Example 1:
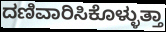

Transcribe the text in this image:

ದಣಿವಾರಿಸಿಕೊಳ್ಳುತ್ತಾ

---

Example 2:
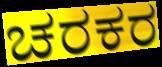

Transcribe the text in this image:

ಚರಕರ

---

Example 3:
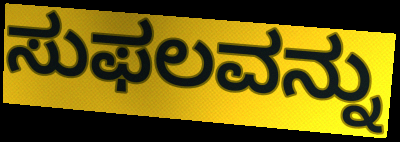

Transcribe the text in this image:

ಸುಫಲವನ್ನು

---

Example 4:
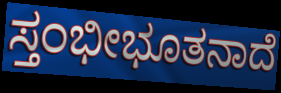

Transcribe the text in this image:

ಸ್ತಂಭೀಭೂತನಾದೆ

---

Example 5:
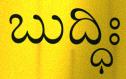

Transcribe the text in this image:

ಬುದ್ಧಿಃ